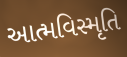
આત્મવિસ્મૃતિ